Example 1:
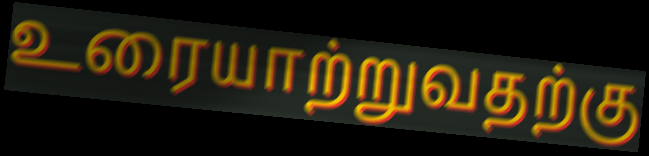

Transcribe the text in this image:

உரையாற்றுவதற்கு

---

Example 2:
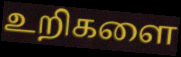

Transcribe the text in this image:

உறிகளை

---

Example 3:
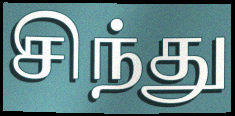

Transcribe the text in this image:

சிந்து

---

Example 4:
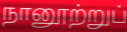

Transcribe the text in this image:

நானூற்றுப்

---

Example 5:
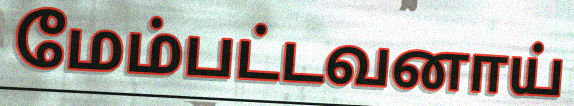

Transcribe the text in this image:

மேம்பட்டவனாய்